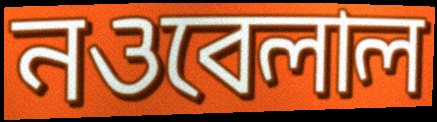
নওবেলাল